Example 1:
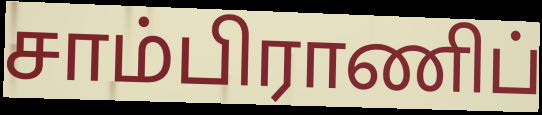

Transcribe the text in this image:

சாம்பிராணிப்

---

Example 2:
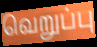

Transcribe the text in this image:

வெறுப்பு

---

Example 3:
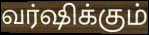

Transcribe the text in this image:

வர்ஷிக்கும்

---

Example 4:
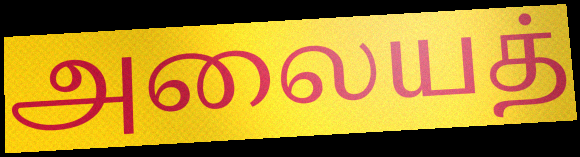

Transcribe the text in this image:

அலையத்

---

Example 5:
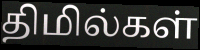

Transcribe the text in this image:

திமில்கள்